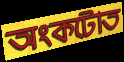
অংকটোত